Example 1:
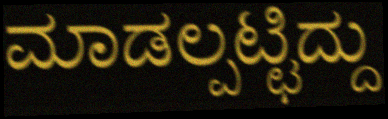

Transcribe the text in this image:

ಮಾಡಲ್ಪಟ್ಟಿದ್ದು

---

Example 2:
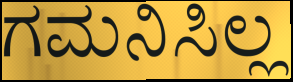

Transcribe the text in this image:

ಗಮನಿಸಿಲ್ಲ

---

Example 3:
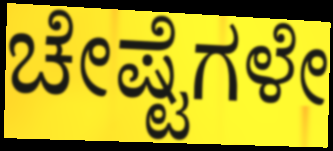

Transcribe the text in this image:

ಚೇಷ್ಟೆಗಳೇ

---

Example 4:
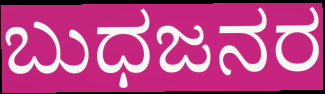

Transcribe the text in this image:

ಬುಧಜನರ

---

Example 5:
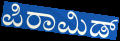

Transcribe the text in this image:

ಪಿರಾಮಿಡ್